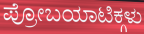
ಪ್ರೋಬಯಾಟಿಕ್ಗಳು